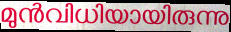
മുൻവിധിയായിരുന്നു